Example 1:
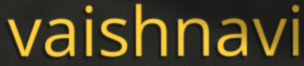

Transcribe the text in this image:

vaishnavi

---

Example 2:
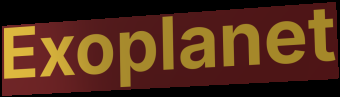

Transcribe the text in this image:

Exoplanet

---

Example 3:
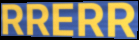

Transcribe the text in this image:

RRERR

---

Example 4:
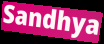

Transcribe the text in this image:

Sandhya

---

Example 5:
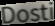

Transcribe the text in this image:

Dosti